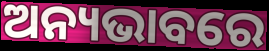
ଅନ୍ୟଭାବରେ